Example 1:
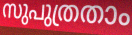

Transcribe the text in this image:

സുപുത്രതാം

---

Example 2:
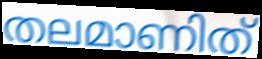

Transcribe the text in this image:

തലമാണിത്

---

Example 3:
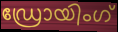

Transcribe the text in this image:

ഡ്രോയിംഗ്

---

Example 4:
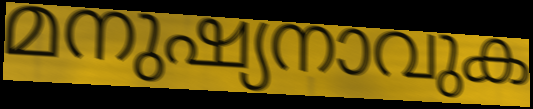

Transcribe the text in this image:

മനുഷ്യനാവുക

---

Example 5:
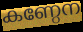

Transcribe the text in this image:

കണ്ഠേന